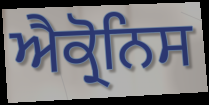
ਐਕ੍ਰੋਨਿਸ